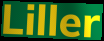
Liller